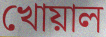
খোয়াল